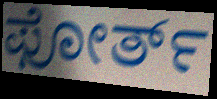
ಫೋರ್ತ್